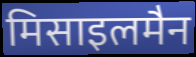
मिसाइलमैन